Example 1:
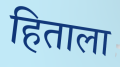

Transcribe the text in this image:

हिताला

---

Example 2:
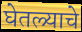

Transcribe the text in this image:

घेतल्याचे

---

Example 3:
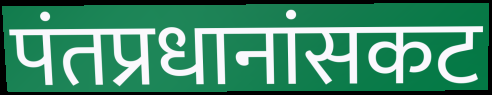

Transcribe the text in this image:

पंतप्रधानांसकट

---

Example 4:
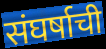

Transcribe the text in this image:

संघर्षाची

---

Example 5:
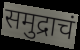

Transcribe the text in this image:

समुद्राचं